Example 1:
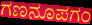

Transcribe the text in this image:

ಗಣನೂಪಗಂ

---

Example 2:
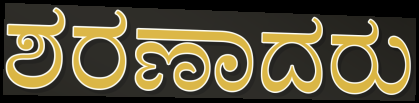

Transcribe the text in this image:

ಶರಣಾದರು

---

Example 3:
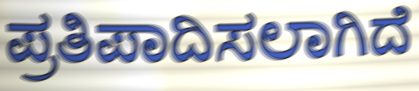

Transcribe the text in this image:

ಪ್ರತಿಪಾದಿಸಲಾಗಿದೆ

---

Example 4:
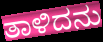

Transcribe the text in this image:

ತಾಳಿದನು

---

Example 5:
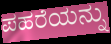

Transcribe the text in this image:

ಪಹರೆಯನ್ನು